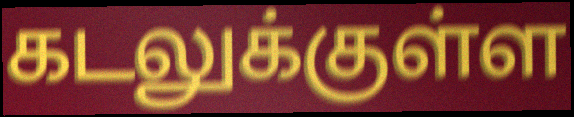
கடலுக்குள்ள